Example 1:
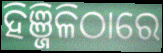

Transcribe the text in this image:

ହିଞ୍ଜିଳିଠାରେ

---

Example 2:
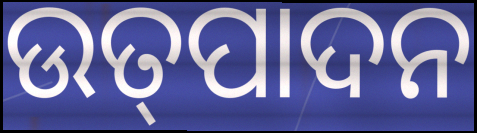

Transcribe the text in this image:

ଉତ୍‍ପାଦନ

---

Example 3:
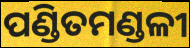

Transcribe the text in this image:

ପଣ୍ଡିତମଣ୍ଡଳୀ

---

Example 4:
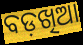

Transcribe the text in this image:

ବଡ଼ଖିଆ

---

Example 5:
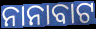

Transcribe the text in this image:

ନାନାବାଟ